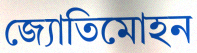
জ্যোতিমোহন